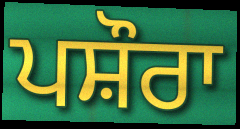
ਪਸ਼ੌਰਾ